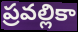
ప్రవల్లికా